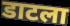
डाटला